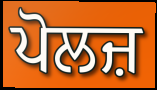
ਪੋਲਜ਼